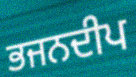
ਭਜਨਦੀਪ